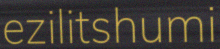
ezilitshumi